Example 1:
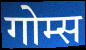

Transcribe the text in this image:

गोम्स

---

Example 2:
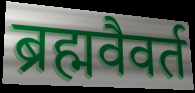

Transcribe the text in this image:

ब्रह्मवैवर्त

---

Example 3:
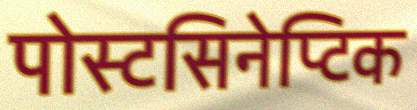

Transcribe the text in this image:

पोस्टसिनेप्टिक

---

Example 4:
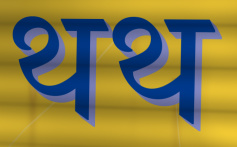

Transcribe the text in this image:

थथ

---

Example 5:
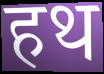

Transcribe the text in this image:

हथ